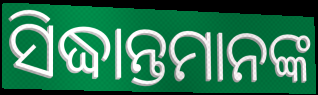
ସିଦ୍ଧାନ୍ତମାନଙ୍କ